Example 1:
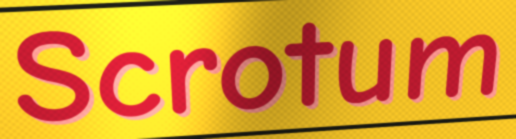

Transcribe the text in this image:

Scrotum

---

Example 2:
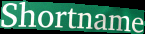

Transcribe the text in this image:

Shortname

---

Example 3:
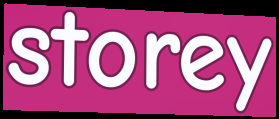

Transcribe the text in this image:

storey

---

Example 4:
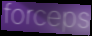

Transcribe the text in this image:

forceps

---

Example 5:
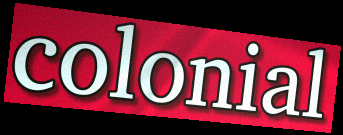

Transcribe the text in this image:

colonial